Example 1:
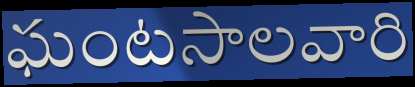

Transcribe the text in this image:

ఘంటసాలవారి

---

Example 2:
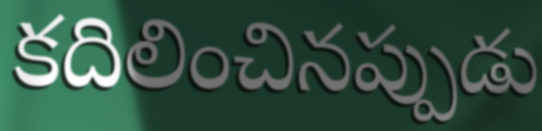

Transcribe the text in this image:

కదిలించినప్పుడు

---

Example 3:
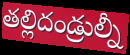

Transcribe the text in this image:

తల్లిదండ్రుల్నీ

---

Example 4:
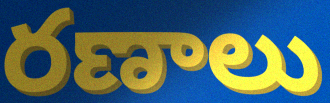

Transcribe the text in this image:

రణాలు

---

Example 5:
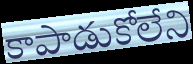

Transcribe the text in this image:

కాపాడుకోలేని